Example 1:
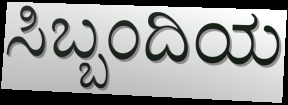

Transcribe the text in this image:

ಸಿಬ್ಬಂದಿಯ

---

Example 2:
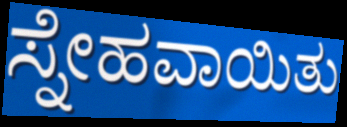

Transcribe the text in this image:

ಸ್ನೇಹವಾಯಿತು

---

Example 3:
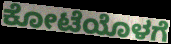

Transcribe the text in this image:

ಕೋಟೆಯೊಳಗೆ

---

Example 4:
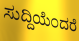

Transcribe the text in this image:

ಸುದ್ದಿಯೆಂದರೆ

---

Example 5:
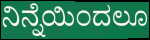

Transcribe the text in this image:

ನಿನ್ನೆಯಿಂದಲೂ